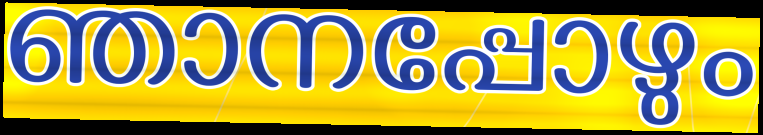
ഞാനപ്പോഴും